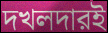
দখলদারই